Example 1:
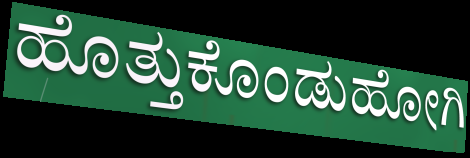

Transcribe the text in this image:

ಹೊತ್ತುಕೊಂಡುಹೋಗಿ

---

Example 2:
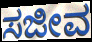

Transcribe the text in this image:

ಸಜೀವ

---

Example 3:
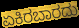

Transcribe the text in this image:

ಏಕಿರಬಾರದು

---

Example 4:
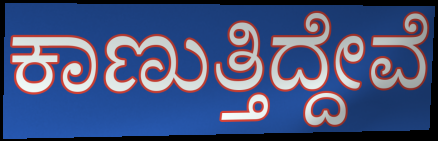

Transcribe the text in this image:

ಕಾಣುತ್ತಿದ್ದೇವೆ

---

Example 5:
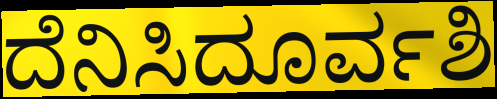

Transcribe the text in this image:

ದೆನಿಸಿದೂರ್ವಶಿ